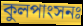
কুলপাংসনঃ